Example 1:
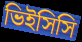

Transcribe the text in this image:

ভিইসিসি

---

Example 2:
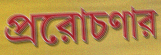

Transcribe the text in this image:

প্ররোচণার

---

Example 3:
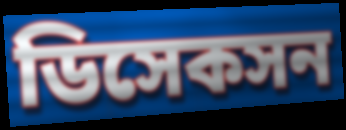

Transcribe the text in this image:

ডিসেকসন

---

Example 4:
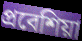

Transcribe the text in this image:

প্রবেশিয়া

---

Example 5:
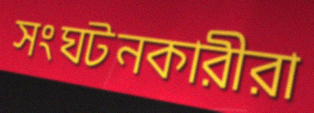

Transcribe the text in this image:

সংঘটনকারীরা